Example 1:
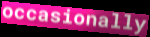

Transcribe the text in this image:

occasionally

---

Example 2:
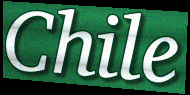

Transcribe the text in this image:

Chile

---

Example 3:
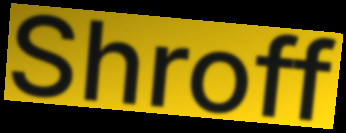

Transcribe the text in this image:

Shroff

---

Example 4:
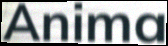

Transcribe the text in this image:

Anima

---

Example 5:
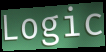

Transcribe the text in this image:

Logic